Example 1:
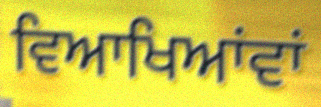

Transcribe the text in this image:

ਵਿਆਖਿਆਂਵਾਂ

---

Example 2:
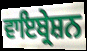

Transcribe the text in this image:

ਵਾਇਬ੍ਰੇਸ਼ਨ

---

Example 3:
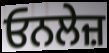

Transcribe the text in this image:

ਓਨਲੇਜ਼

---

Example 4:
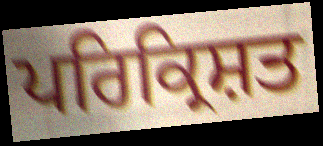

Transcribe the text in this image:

ਪਰਿਕ੍ਰਿਸ਼ਤ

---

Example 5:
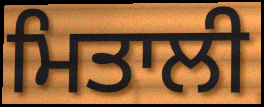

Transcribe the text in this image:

ਮਿਤਾਲੀ